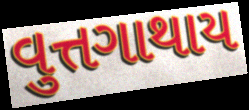
વુત્તગાથાય